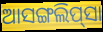
ଆସଙ୍ଗଲିପ୍‌ସା